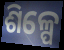
ଶିଳ୍ପେ